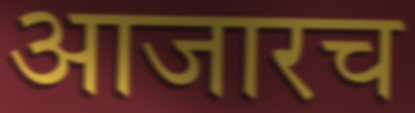
आजारच